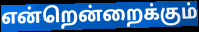
என்றென்றைக்கும்